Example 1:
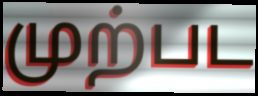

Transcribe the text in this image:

முற்பட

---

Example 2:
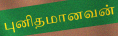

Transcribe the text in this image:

புனிதமானவன்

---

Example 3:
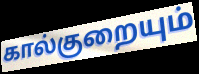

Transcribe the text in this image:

கால்குறையும்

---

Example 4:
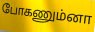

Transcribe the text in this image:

போகணும்னா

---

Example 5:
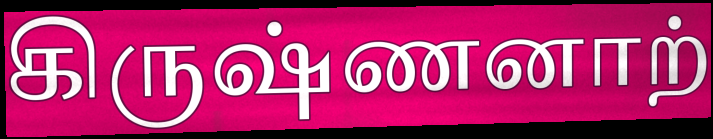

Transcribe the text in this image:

கிருஷ்ணனாற்